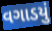
વગાડયું